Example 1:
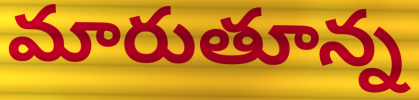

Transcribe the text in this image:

మారుతూన్న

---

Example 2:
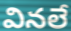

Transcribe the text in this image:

వినలే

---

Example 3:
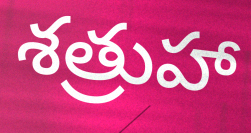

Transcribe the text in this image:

శత్రుహా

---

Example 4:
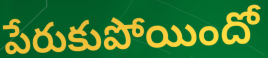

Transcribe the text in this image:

పేరుకుపోయిందో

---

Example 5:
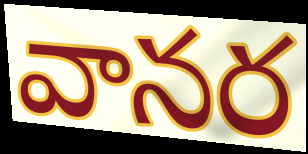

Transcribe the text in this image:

వానర